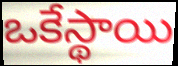
ఒకేస్థాయి